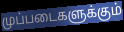
முப்படைகளுக்கும்